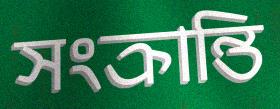
সংক্রান্তি